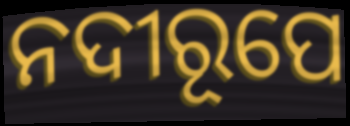
ନଦୀରୂପେ